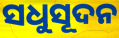
ସଧୁସୂଦନ